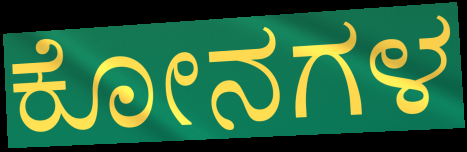
ಕೋನಗಳ